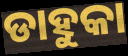
ଡାହୁକା